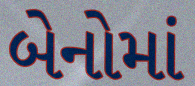
બેનોમાં